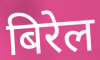
बिरेल